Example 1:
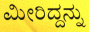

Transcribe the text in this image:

ಮೀರಿದ್ದನ್ನು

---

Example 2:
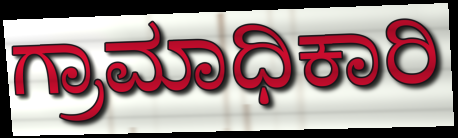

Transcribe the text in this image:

ಗ್ರಾಮಾಧಿಕಾರಿ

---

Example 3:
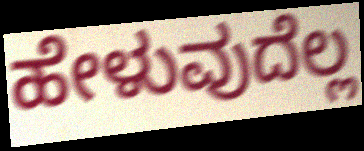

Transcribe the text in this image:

ಹೇಳುವುದೆಲ್ಲ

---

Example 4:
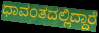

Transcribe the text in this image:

ಧಾವಂತದಲ್ಲಿದ್ದಾರೆ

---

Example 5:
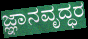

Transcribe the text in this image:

ಜ್ಞಾನವೃದ್ಧರ